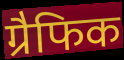
ग्रैफिक